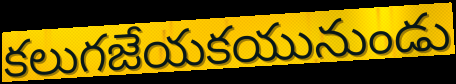
కలుగజేయకయునుండు